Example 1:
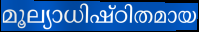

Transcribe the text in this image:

മൂല്യാധിഷ്ഠിതമായ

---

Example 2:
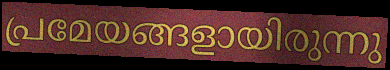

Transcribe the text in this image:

പ്രമേയങ്ങളായിരുന്നു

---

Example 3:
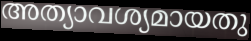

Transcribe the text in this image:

അത്യാവശ്യമായതു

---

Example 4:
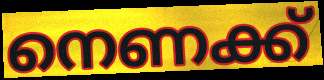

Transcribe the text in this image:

നെണക്ക്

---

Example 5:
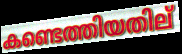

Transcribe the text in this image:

കണ്ടെത്തിയതില്